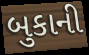
બુકાની